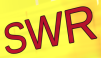
SWR